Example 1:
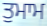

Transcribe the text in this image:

ਤੁਮਾਮ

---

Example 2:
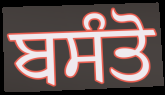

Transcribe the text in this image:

ਬਸੰਤੋ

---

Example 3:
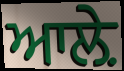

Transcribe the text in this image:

ਆਲ਼ੇ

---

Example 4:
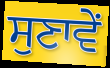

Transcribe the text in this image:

ਸੁਣਾਵੇਂ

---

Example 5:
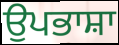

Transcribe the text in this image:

ਉਪਭਾਸ਼ਾ